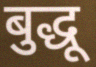
बुद्धू